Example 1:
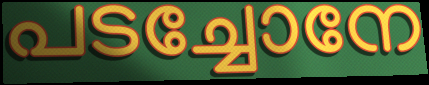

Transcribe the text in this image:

പടച്ചോനേ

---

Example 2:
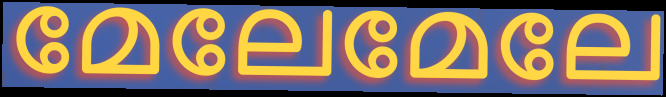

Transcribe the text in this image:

മേലേമേലേ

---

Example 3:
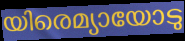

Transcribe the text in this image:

യിരെമ്യായോടു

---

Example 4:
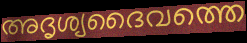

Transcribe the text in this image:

അദൃശ്യദൈവത്തെ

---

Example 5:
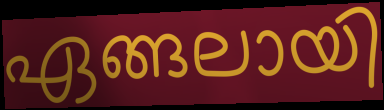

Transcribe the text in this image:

ഏങ്ങലായി